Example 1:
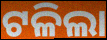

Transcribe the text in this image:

ଟଳିଲା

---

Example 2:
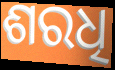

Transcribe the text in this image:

ଶରଧି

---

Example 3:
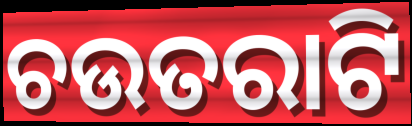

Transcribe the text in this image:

ଚଉତରାଟି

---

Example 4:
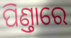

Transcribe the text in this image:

ପିଣ୍ତାରେ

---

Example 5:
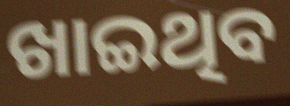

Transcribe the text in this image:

ଖାଇଥିବ